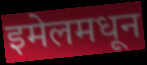
इमेलमधून